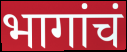
भागांचं